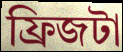
ফ্রিজটা